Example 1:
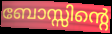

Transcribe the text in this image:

ബോസ്സിന്റെ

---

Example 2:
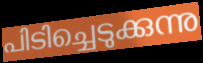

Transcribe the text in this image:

പിടിച്ചെടുക്കുന്നു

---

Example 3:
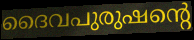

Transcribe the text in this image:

ദൈവപുരുഷന്റെ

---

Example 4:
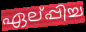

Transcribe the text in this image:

ഏല്പ്പിച്ച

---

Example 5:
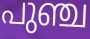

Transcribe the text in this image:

പുഞ്ച